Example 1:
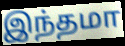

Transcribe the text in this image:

இந்தமா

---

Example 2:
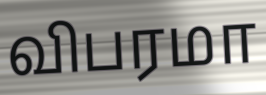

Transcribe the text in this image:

விபரமா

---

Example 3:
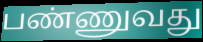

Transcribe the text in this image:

பண்ணுவது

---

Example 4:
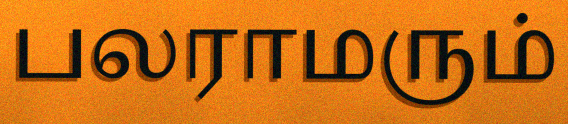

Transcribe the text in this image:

பலராமரும்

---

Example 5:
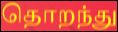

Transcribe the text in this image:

தொறந்து